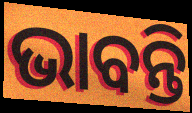
ଭାବନ୍ତି